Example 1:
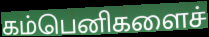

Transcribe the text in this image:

கம்பெனிகளைச்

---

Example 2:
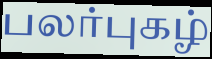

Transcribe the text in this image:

பலர்புகழ்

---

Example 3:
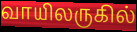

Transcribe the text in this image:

வாயிலருகில்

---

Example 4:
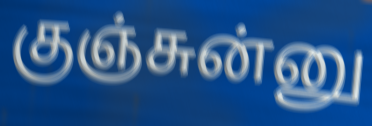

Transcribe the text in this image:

குஞ்சுன்னு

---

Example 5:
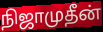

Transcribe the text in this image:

நிஜாமுதீன்